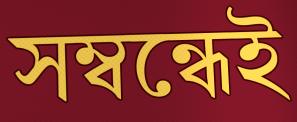
সম্বন্ধেই